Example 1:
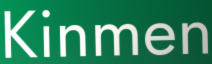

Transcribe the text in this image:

Kinmen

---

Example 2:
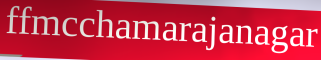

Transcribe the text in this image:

ffmcchamarajanagar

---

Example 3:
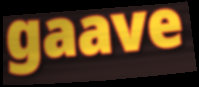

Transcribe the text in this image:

gaave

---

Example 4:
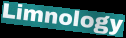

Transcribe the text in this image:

Limnology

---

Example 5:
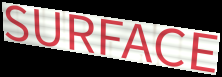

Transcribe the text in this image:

SURFACE